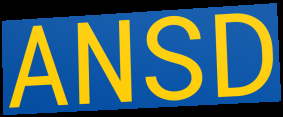
ANSD